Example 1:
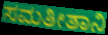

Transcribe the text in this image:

ಸಮತೀತಾನಿ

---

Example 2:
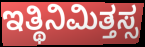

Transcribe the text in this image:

ಇತ್ಥಿನಿಮಿತ್ತಸ್ಸ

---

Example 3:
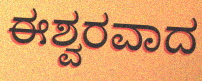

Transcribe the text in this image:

ಈಶ್ವರವಾದ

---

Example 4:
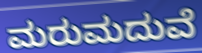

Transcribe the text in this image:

ಮರುಮದುವೆ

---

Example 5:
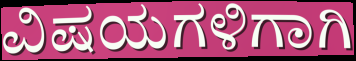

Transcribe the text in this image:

ವಿಷಯಗಳಿಗಾಗಿ